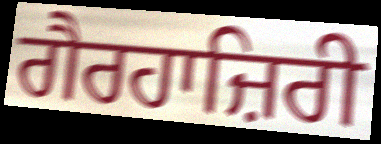
ਗੈਰਹਾਜ਼ਿਰੀ